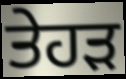
ਤੇਹੜ